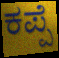
ಕಪ್ಪೆ